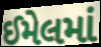
ઈમેલમાં